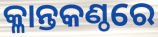
କ୍ଳାନ୍ତକଣ୍ଠରେ